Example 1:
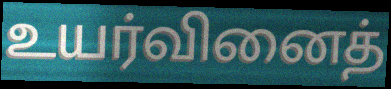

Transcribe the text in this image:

உயர்வினைத்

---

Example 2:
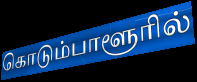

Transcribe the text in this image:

கொடும்பாளூரில்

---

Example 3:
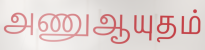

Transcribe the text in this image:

அணுஆயுதம்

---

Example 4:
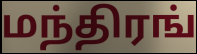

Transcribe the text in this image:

மந்திரங்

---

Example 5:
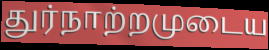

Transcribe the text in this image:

துர்நாற்றமுடைய